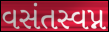
વસંતસ્વપ્ન